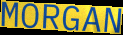
MORGAN